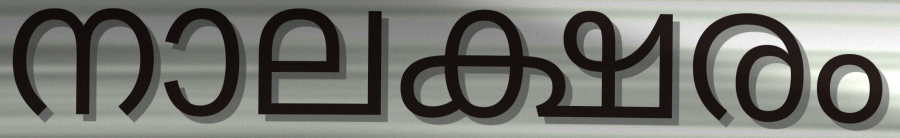
നാലക്ഷരം